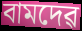
বামদেৱ